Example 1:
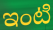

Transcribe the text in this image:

ఇంటి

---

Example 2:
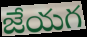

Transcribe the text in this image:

జేయగ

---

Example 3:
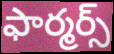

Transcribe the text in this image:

ఫార్మర్స్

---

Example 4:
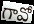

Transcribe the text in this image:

గావో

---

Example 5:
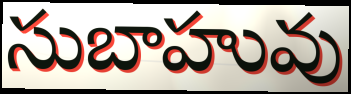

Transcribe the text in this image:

సుబాహువు